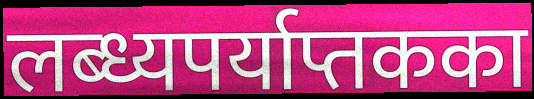
लब्ध्यपर्याप्तकका